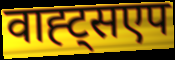
वाह्ट्सएप